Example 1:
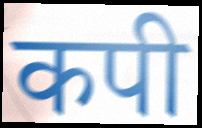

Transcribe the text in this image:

कपी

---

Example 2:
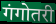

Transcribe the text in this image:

गंगोतरी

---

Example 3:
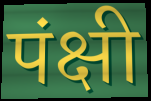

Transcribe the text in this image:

पंक्षी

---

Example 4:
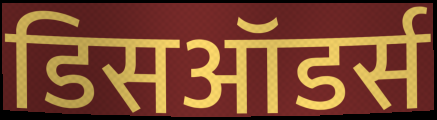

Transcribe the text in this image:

डिसऑडर्स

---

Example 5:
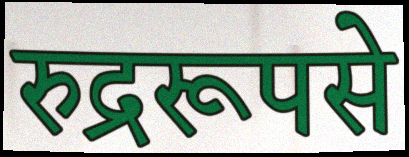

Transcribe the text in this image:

रुद्ररूपसे